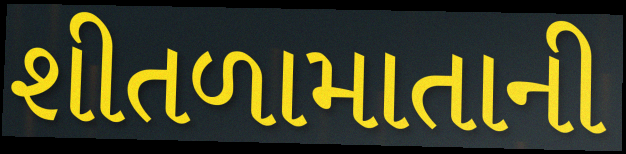
શીતળામાતાની